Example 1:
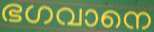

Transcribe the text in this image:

ഭഗവാനെ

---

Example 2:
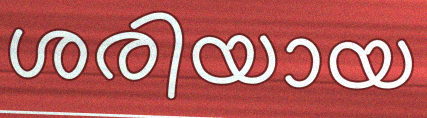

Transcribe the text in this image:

ശരിയായ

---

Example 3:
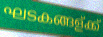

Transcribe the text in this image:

ഘടകങ്ങള്ക്ക്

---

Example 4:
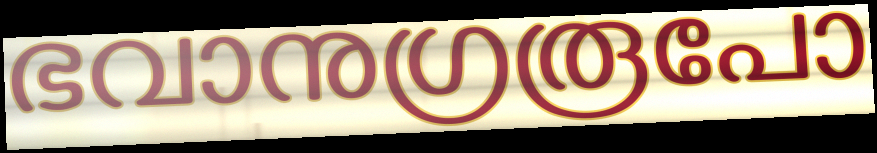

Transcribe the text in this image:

ഭവാനുഗ്രരൂപോ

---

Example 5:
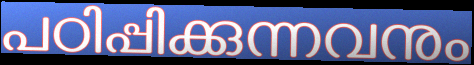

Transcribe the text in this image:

പഠിപ്പിക്കുന്നവനും